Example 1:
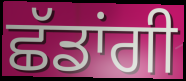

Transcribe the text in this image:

ਛੱਡਾਂਗੀ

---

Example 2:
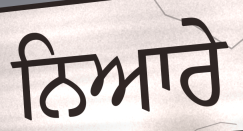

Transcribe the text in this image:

ਨਿਆਰੇ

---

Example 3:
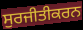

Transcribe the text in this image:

ਸੁਰਜੀਤੀਕਰਨ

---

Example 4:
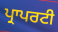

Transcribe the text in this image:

ਪ੍ਰਾਪਰਟੀ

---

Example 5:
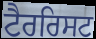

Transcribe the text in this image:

ਟੈਰਰਿਸਟ